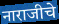
नाराजीचे